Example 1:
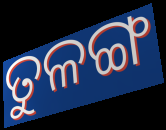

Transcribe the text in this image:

ତୁଳଙ୍ଗ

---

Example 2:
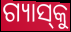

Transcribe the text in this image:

ଗ୍ୟାସ୍‌କୁ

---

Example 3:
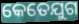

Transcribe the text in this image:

କେତେଯୁଗ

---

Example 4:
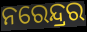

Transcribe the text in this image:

ନରେନ୍ଦ୍ରର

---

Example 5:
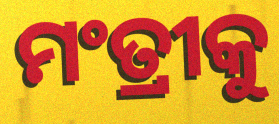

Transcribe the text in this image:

ମଂତ୍ରୀକୁ